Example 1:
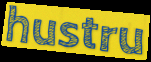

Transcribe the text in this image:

hustru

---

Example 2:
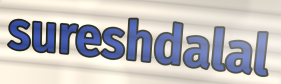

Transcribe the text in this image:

sureshdalal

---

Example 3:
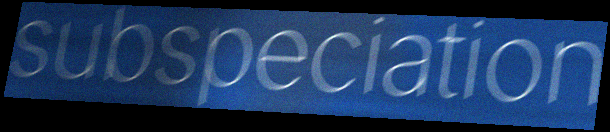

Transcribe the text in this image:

subspeciation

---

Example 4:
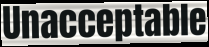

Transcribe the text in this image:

Unacceptable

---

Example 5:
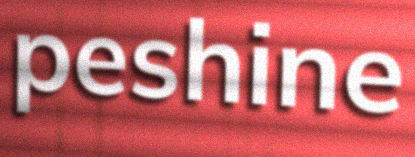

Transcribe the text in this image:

peshine